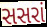
સસરાં